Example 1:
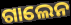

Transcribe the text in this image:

ଗାଲେନ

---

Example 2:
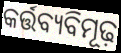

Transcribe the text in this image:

କର୍ତ୍ତବ୍ୟବିମୂଢ଼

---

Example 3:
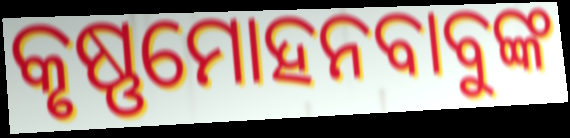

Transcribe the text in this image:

କୃଷ୍ଣମୋହନବାବୁଙ୍କ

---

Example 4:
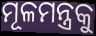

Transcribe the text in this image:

ମୂଳମନ୍ତ୍ରକୁ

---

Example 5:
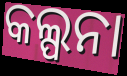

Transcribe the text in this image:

କଲ୍ପନା